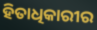
ହିତାଧିକାରୀର